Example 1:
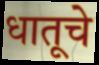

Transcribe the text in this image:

धातूचे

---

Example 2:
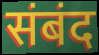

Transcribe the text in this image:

संबंद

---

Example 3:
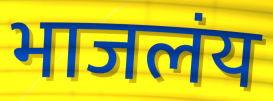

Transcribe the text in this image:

भाजलंय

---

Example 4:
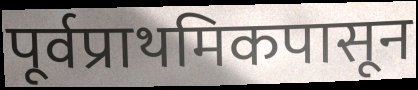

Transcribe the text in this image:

पूर्वप्राथमिकपासून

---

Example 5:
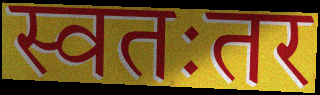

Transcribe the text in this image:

स्वतःतर